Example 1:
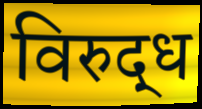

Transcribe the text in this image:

विरुद्ध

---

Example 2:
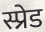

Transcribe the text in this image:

स्प्रेड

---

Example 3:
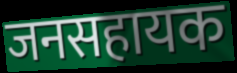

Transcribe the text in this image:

जनसहायक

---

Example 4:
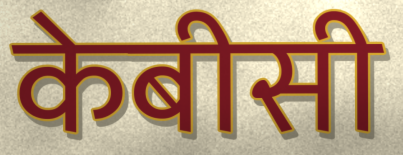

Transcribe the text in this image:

केबीसी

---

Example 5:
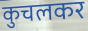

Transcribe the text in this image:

कुचलकर